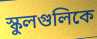
স্কুলগুলিকে